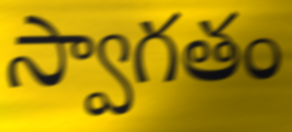
స్వాగతం